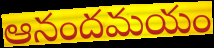
ఆనందమయం